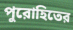
পুরোহিতের